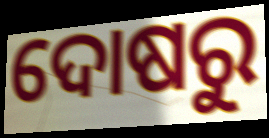
ଦୋଷରୁ